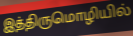
இத்திருமொழியில்